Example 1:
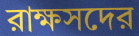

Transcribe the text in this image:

রাক্ষসদের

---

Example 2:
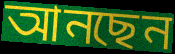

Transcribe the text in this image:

আনছেন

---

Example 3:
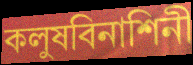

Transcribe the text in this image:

কলুষবিনাশিনী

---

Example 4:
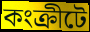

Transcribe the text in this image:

কংক্রীটে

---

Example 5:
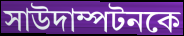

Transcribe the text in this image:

সাউদাম্পটনকে